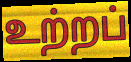
உற்றப்